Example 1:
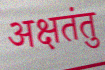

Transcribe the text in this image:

अक्षतंतु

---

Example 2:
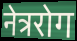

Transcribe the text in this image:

नेत्ररोग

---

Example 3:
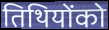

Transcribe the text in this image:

तिथियोंको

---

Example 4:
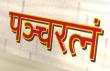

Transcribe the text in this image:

पञ्चरत्नं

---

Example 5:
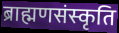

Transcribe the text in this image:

ब्राह्मणसंस्कृति